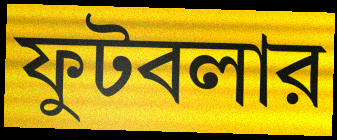
ফুটবলার